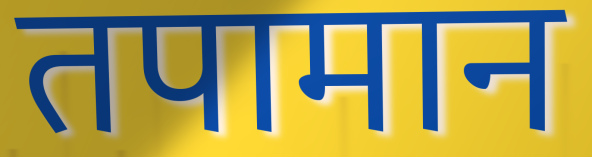
तपामान